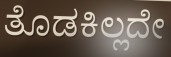
ತೊಡಕಿಲ್ಲದೇ